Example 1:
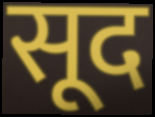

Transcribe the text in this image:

सूद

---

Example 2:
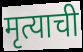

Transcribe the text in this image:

मृत्याची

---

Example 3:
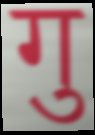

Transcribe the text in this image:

गु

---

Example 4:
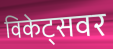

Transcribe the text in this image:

विकेट्सवर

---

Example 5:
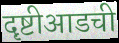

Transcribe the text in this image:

दृष्टीआडची